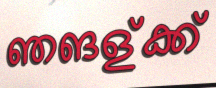
ഞങള്ക്ക്